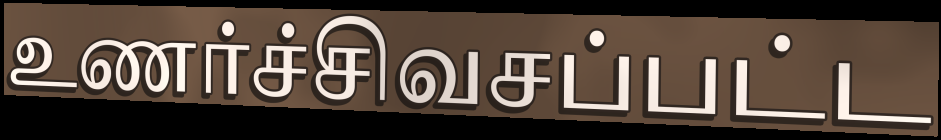
உணர்ச்சிவசப்பட்ட